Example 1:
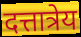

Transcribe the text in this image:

दत्तात्रेय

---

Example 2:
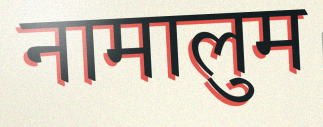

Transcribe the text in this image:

नामालुम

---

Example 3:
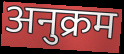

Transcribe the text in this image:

अनुक्रम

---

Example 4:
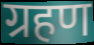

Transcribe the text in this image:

ग्रहण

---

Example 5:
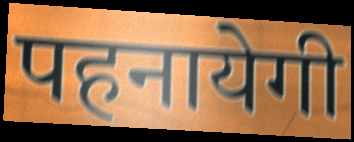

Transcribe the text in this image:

पहनायेगी